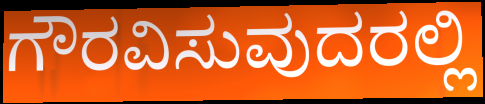
ಗೌರವಿಸುವುದರಲ್ಲಿ